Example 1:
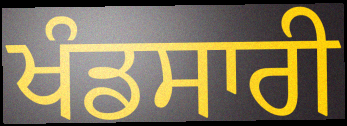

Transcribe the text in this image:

ਖੰਡਸਾਰੀ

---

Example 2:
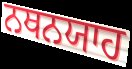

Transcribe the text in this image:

ਨਥਨਯਾਹ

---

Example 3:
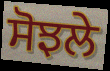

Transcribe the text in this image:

ਸੋਝਲੇ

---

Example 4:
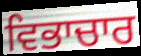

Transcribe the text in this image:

ਵਿਭਾਚਾਰ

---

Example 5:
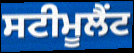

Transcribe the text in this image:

ਸਟੀਮੂਲੈਂਟ